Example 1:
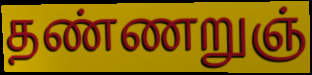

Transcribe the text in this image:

தண்ணறுஞ்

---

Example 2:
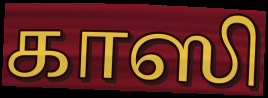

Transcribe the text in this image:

காஸி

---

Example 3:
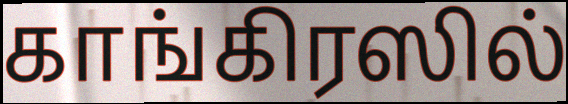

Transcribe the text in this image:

காங்கிரஸில்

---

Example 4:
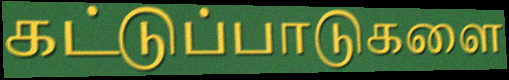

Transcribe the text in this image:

கட்டுப்பாடுகளை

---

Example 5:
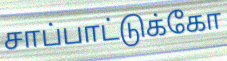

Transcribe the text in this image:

சாப்பாட்டுக்கோ